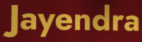
Jayendra